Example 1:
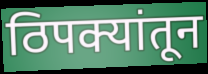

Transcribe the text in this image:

ठिपक्यांतून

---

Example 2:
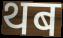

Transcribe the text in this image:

थब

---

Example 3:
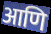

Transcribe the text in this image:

आणि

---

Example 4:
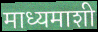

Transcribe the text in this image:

माध्यमाशी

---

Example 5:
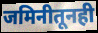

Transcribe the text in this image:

जमिनीतूनही